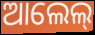
ଆଲେଲ୍